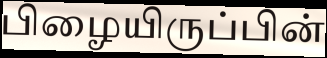
பிழையிருப்பின்